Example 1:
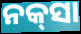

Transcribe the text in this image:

ନକ୍‍ସା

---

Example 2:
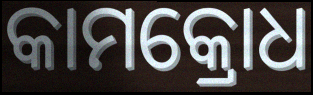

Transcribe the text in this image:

କାମକ୍ରୋଧ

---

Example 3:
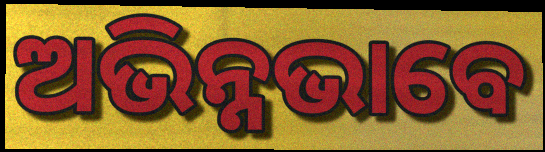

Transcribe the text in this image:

ଅଭିନ୍ନଭାବେ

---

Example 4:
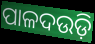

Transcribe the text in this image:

ପାଳଦଉଡ଼ି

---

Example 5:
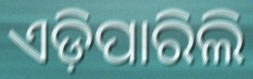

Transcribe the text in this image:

ଏଡ଼ିପାରିଲି